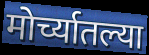
मोर्च्यातल्या